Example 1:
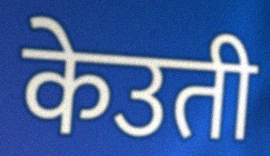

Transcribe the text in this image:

केउती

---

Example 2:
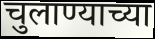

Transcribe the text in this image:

चुलाण्याच्या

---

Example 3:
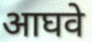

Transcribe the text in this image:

आघवे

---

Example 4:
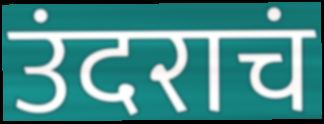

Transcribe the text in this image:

उंदराचं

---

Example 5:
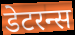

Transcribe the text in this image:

डेटरन्स